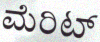
ಮೆರಿಟ್